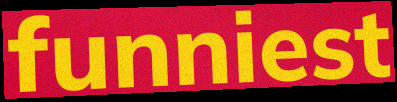
funniest